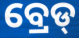
ବ୍ରେଡ୍